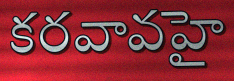
కరవావహై